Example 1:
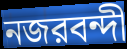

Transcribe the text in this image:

নজরবন্দী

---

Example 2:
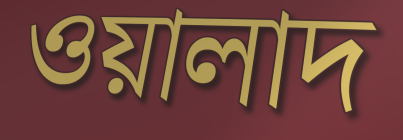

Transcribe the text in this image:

ওয়ালাদ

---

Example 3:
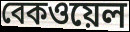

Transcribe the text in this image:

বেকওয়েল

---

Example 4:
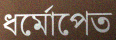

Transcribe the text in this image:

ধর্মোপেত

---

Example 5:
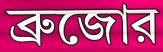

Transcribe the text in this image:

ব্রুজোর